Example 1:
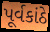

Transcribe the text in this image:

પૂર્વકાંઠે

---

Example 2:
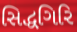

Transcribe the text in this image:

સિદ્ધગિરિ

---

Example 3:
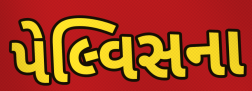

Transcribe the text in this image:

પેલ્વિસના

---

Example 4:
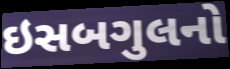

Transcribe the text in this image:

ઇસબગુલનો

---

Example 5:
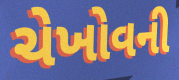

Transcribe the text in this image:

ચેખોવની